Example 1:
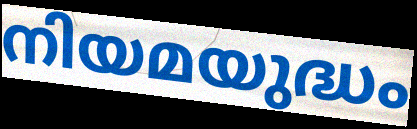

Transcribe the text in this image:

നിയമയുദ്ധം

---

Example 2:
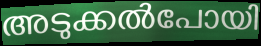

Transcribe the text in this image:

അടുക്കൽപോയി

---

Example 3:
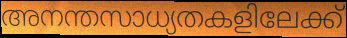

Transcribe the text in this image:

അനന്തസാധ്യതകളിലേക്ക്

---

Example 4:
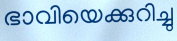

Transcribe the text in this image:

ഭാവിയെക്കുറിച്ചു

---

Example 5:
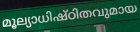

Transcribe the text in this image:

മൂല്യാധിഷ്ഠിതവുമായ